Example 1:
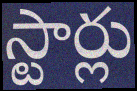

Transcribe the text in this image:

స్టార్లు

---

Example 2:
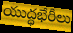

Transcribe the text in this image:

యుద్ధభేరీలు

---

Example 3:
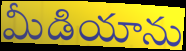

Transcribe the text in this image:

మీడియాను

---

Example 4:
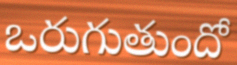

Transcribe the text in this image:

ఒరుగుతుందో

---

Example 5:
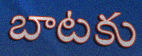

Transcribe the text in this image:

బాటకు